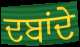
ਦਬਾਂਦੇ